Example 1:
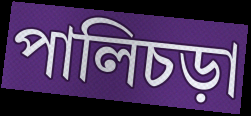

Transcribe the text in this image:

পালিচড়া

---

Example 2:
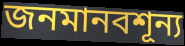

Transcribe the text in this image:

জনমানবশূন্য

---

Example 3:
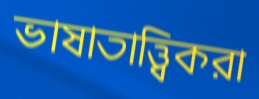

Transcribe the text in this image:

ভাষাতাত্ত্বিকরা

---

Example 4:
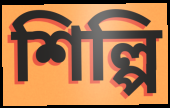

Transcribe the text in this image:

শিল্পি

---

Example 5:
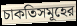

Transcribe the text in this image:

চাকতিসমূহের